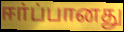
ஈர்ப்பானது